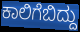
ಕಾಲಿಗೆಬಿದ್ದು